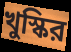
খুস্কির